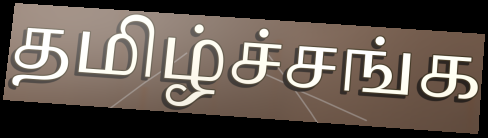
தமிழ்ச்சங்க